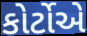
કોર્ટોએ